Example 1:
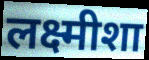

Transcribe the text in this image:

लक्ष्मीशा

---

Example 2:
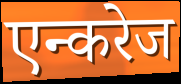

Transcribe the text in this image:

एन्करेज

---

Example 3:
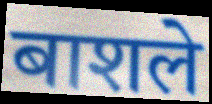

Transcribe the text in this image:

बाशले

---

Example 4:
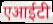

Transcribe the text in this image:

एआईटी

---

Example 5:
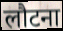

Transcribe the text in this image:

लौटना